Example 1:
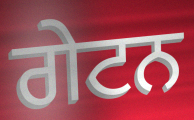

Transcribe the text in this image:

ਗੇਟਨ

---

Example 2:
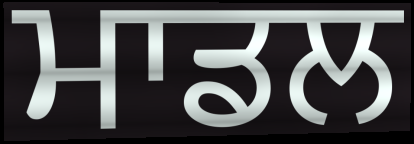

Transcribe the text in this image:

ਮਾਡਲ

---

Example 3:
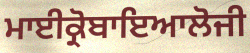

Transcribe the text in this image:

ਮਾਈਕ੍ਰੋਬਾਇਆਲੋਜੀ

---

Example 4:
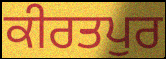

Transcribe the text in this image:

ਕੀਰਤਪੁਰ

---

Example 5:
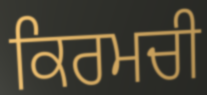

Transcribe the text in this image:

ਕਿਰਮਚੀ